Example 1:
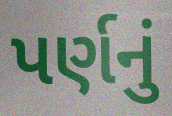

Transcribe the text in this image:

પર્ણનું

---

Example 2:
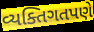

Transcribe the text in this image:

વ્યક્તિગતપણે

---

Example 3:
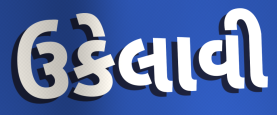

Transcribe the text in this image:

ઉકેલાવી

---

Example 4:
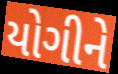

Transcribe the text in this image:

યોગીને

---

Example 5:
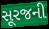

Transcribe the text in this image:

સૂરજની